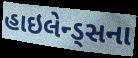
હાઇલેન્ડ્સના